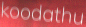
koodathu